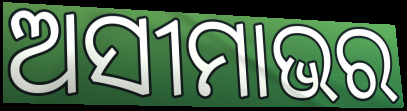
ଅସୀମାଭର